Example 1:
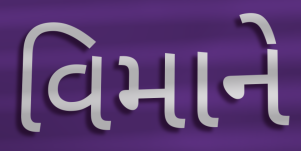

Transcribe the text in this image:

વિમાને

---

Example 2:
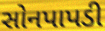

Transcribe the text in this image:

સોનપાપડી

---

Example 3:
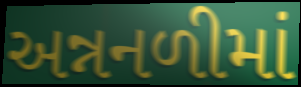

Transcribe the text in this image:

અન્નનળીમાં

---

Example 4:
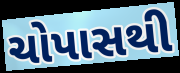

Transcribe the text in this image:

ચોપાસથી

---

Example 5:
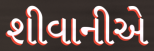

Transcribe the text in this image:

શીવાનીએ